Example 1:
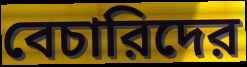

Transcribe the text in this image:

বেচারিদের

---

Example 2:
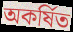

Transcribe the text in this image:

অকর্ষিত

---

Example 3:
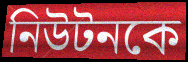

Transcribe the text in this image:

নিউটনকে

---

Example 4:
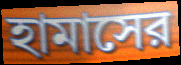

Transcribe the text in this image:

হামাসের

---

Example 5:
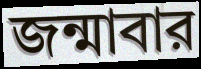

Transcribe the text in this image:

জন্মাবার